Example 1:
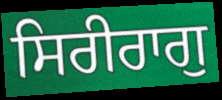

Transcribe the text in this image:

ਸਿਰੀਰਾਗੁ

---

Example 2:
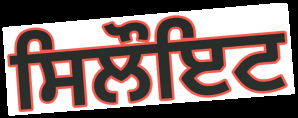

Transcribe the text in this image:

ਸਿਲੌਇਟ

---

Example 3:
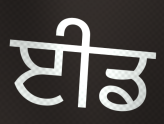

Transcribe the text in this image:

ਈਡ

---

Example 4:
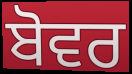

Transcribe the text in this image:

ਬੋਵਰ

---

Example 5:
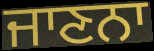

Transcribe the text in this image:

ਜਾਣਨਾ